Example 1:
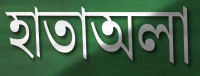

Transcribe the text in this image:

হাতাঅলা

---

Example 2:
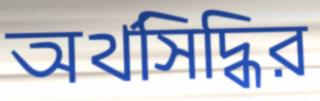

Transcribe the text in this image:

অর্থসিদ্ধির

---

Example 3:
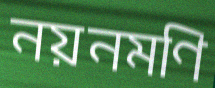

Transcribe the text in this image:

নয়নমণি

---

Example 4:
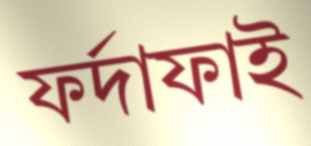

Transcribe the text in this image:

ফর্দাফাই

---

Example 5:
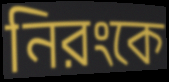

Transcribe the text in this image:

নিরংকে